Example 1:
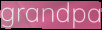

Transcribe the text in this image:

grandpa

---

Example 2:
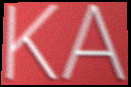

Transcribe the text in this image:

KA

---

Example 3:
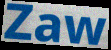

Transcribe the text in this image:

Zaw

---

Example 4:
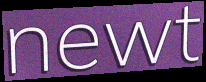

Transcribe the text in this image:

newt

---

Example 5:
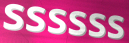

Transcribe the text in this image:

ssssss